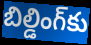
బిల్డింగ్‌కు